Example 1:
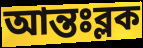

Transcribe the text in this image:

আন্তঃব্লক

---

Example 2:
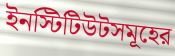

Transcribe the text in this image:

ইনস্টিটিউটসমূহের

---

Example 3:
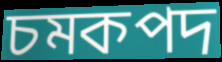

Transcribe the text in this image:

চমকপদ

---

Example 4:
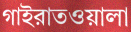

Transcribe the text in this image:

গাইরাতওয়ালা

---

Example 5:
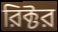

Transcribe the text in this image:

রিক্টর